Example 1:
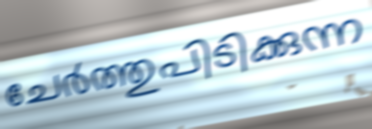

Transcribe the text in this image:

ചേർത്തുപിടിക്കുന്ന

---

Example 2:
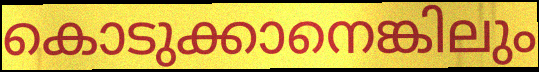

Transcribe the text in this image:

കൊടുക്കാനെങ്കിലും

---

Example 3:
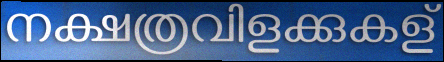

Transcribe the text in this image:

നക്ഷത്രവിളക്കുകള്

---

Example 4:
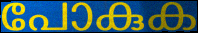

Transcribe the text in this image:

പോകുക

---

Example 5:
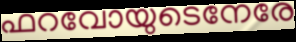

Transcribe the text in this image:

ഫറവോയുടെനേരേ